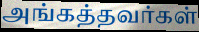
அங்கத்தவர்கள்